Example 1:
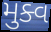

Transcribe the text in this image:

મુક્વ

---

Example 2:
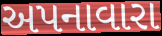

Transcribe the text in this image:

અપનાવારા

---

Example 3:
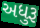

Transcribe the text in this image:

અધુરૂ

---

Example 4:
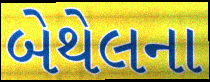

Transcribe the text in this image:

બેથેલના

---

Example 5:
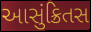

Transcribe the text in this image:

આસુંક્રિતસ